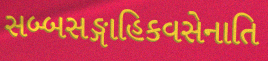
સબ્બસઙ્ગાહિકવસેનાતિ